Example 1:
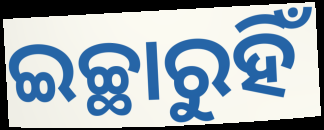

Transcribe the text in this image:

ଇଚ୍ଛାରୁହିଁ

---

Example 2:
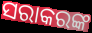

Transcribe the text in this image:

ସରାକରଙ୍କ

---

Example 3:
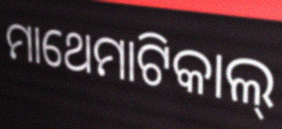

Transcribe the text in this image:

ମାଥେମାଟିକାଲ୍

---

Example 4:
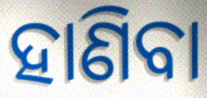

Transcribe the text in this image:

ହାଣିବା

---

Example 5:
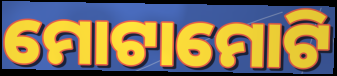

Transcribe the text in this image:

ମୋଟାମୋଟି